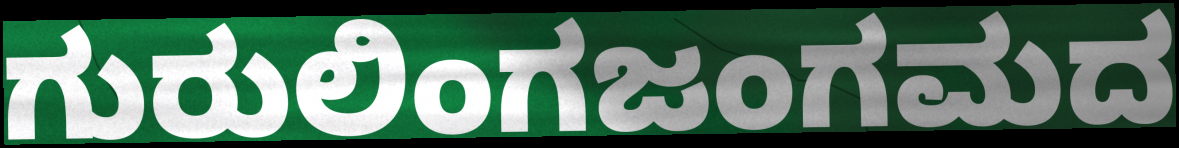
ಗುರುಲಿಂಗಜಂಗಮದ